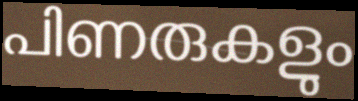
പിണരുകളും